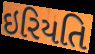
ઇરિયતિ